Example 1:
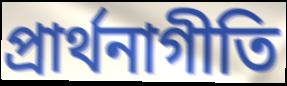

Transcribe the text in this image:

প্রার্থনাগীতি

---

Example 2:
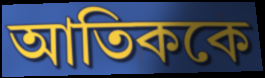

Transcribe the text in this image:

আতিককে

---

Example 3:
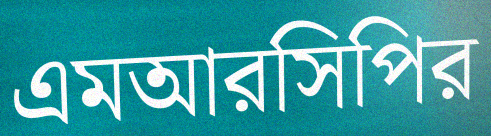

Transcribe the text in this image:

এমআরসিপির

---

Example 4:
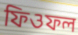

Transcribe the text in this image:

ফিওফল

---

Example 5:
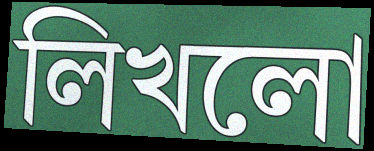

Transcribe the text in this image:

লিখলো